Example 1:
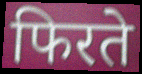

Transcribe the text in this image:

फिरते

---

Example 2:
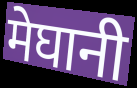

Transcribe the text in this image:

मेघानी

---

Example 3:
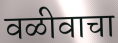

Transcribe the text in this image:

वळीवाचा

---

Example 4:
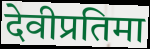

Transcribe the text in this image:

देवीप्रतिमा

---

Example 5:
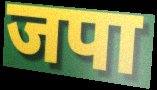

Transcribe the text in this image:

जपा